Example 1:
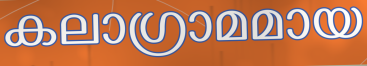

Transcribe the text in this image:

കലാഗ്രാമമായ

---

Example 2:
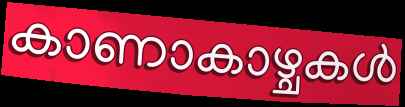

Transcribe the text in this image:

കാണാകാഴ്ചകൾ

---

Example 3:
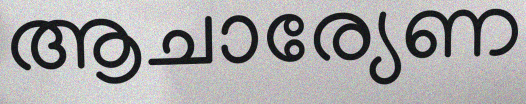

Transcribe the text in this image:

ആചാര്യേണ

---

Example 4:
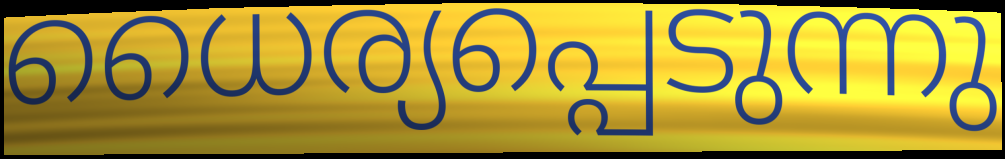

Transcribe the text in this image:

ധൈര്യപ്പെടുന്നു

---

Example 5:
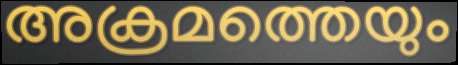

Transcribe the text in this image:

അക്രമത്തെയും